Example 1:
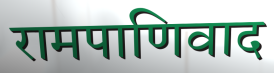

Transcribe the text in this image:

रामपाणिवाद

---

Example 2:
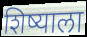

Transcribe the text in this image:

शिष्याला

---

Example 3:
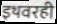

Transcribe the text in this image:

इथवरही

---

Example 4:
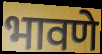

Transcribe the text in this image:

भावणे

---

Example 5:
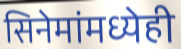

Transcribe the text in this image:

सिनेमांमध्येही